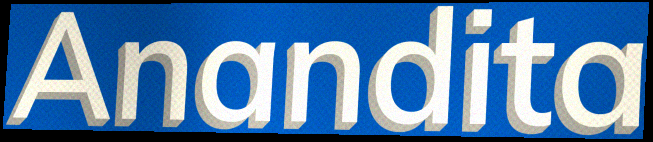
Anandita